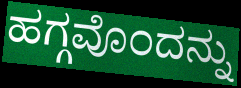
ಹಗ್ಗವೊಂದನ್ನು